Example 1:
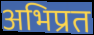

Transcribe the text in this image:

अभिप्रत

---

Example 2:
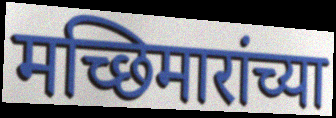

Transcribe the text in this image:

मच्छिमारांच्या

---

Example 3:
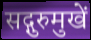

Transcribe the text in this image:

सद्गुरुमुखें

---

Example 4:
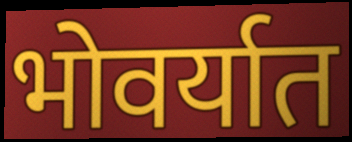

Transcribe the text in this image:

भोवर्यात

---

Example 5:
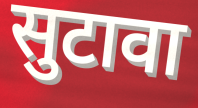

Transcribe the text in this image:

सुटावा